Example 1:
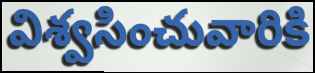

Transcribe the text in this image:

విశ్వసించువారికి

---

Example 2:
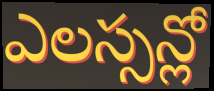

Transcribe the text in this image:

ఎలస్సన్లో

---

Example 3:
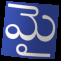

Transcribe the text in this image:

మై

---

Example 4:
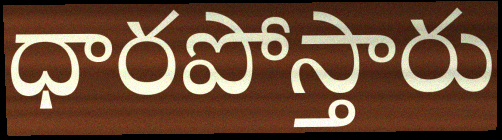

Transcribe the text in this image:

ధారపోస్తారు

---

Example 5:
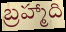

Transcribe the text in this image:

బ్రహ్మాది